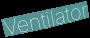
Ventilator